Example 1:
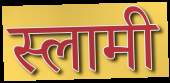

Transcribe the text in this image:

स्लामी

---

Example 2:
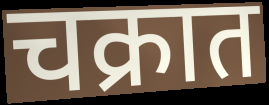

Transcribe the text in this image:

चक्रात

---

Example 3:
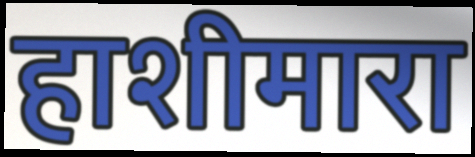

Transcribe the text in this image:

हाशीमारा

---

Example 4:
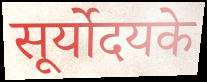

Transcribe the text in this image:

सूर्योदयके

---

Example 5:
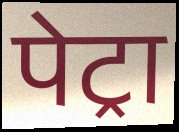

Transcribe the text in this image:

पेट्रा